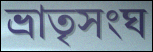
ভ্রাতৃসংঘ